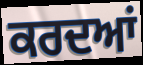
ਕਰਦਆਂ